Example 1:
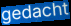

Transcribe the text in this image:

gedacht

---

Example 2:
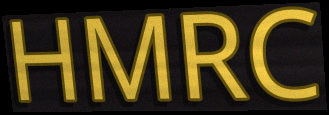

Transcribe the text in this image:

HMRC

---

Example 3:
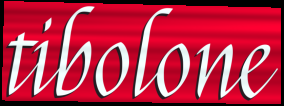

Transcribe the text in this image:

tibolone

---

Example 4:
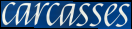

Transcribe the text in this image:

carcasses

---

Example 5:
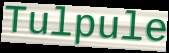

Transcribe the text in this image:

Tulpule